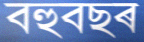
বহুবছৰ